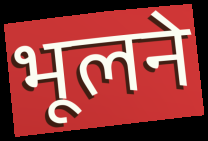
भूलने